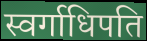
स्वर्गाधिपति